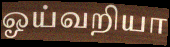
ஓய்வறியா